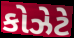
કોઝેટે